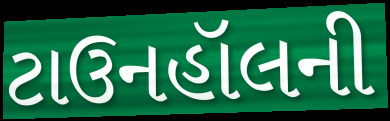
ટાઉનહૉલની